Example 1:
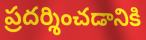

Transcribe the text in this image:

ప్రదర్శించడానికి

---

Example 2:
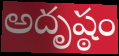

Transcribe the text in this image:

అదృష్ఠం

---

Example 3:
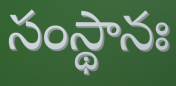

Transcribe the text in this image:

సంస్థానః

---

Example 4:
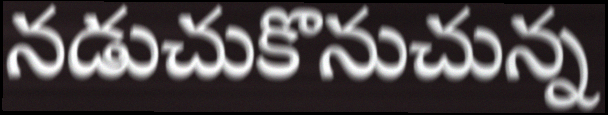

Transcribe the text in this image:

నడుచుకొనుచున్న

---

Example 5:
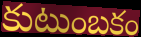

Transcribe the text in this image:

కుటుంబకం